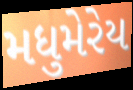
મધુમેરેય